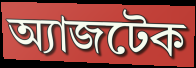
অ্যাজটেক